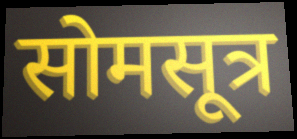
सोमसूत्र